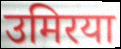
उमिरया